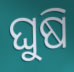
ଘୁଷି